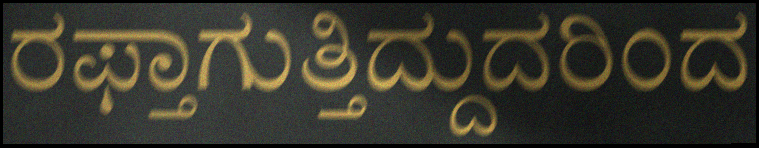
ರಫ್ತಾಗುತ್ತಿದ್ದುದರಿಂದ